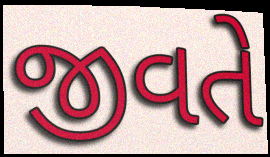
જીવતે